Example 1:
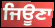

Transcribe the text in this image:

ਜਿਊਣਾ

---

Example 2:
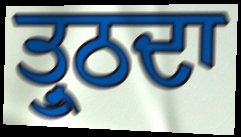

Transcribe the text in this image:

ਤ੍ਰੁਠਦਾ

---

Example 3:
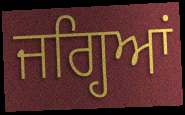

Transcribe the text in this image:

ਜਗ੍ਹਿਆਂ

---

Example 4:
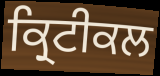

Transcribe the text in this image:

ਕ੍ਰਿਟੀਕਲ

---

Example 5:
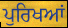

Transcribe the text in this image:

ਪੁਰਿਖਆਂ